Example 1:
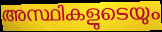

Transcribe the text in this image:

അസ്ഥികളുടെയും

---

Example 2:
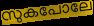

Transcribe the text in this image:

സുകപോലേ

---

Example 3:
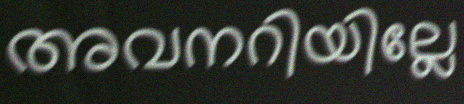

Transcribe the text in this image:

അവനറിയില്ലേ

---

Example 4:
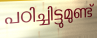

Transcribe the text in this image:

പഠിച്ചിട്ടുമുണ്ട്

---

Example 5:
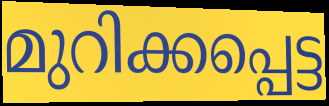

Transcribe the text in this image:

മുറിക്കപ്പെട്ട